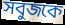
সবুজকে